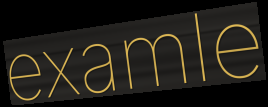
examle